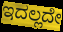
ಇದಲ್ಲದೇ